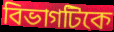
বিভাগটিকে